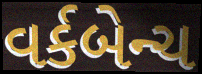
વર્કબેન્ચ